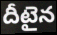
దీటైన